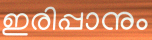
ഇരിപ്പാനും